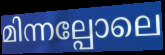
മിന്നല്പോലെ